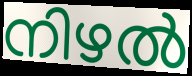
നിഴൽ